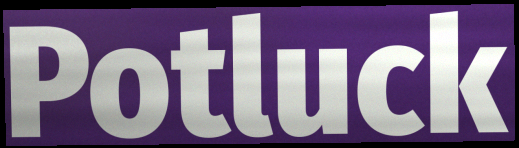
Potluck